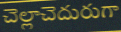
చెల్లాచెదురుగా